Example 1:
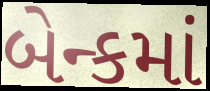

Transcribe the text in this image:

બેન્કમાં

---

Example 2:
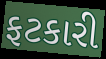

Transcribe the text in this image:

ફટકારી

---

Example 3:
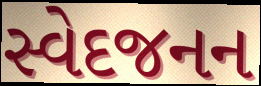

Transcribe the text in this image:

સ્વેદજનન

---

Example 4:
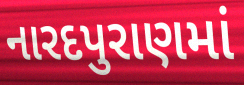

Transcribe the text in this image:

નારદપુરાણમાં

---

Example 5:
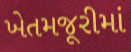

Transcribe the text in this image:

ખેતમજૂરીમાં